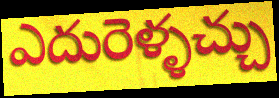
ఎదురెళ్ళచ్చు